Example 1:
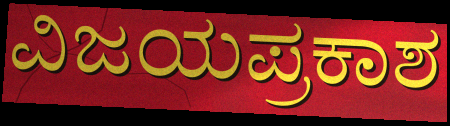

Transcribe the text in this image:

ವಿಜಯಪ್ರಕಾಶ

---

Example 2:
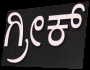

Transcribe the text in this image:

ಗ್ರೀಕ್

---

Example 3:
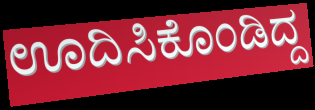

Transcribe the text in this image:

ಊದಿಸಿಕೊಂಡಿದ್ದ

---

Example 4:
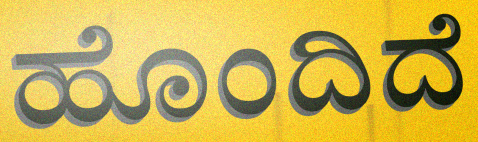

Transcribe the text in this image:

ಹೊಂದಿದೆ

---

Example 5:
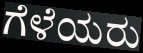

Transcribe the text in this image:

ಗೆಳೆಯರು